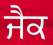
ਜੈਕ